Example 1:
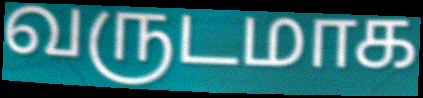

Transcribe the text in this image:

வருடமாக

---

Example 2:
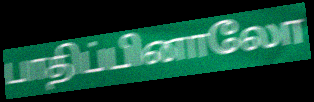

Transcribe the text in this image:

பாதிப்பினாலோ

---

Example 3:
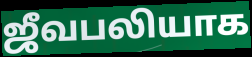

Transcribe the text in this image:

ஜீவபலியாக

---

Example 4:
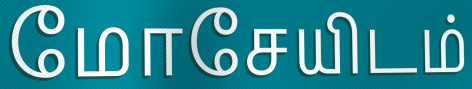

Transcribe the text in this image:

மோசேயிடம்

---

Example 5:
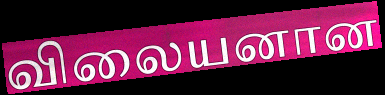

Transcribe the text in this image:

விலையனான